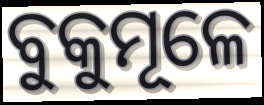
ବୁକୁମୂଳେ